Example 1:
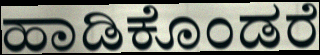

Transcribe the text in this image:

ಹಾಡಿಕೊಂಡರೆ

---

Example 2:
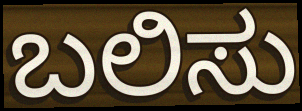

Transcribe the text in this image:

ಬಲಿಸು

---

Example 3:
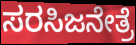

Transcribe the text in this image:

ಸರಸಿಜನೇತ್ರೆ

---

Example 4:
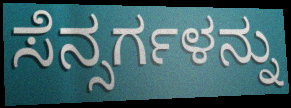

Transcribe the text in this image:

ಸೆನ್ಸರ್ಗಳನ್ನು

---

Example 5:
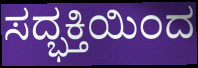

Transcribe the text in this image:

ಸದ್ಭಕ್ತಿಯಿಂದ